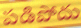
పడిపోదు